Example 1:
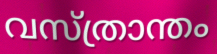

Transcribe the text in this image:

വസ്ത്രാന്തം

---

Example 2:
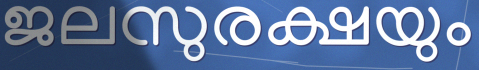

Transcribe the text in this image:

ജലസുരക്ഷയും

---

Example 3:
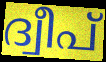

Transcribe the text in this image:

ദ്വീപ്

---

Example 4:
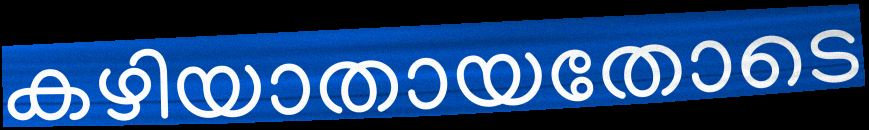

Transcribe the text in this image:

കഴിയാതായതോടെ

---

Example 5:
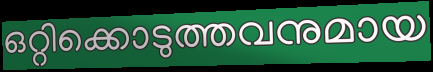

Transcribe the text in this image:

ഒറ്റിക്കൊടുത്തവനുമായ